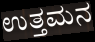
ಉತ್ತಮನ